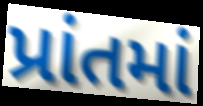
પ્રાંતમાં